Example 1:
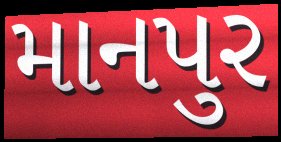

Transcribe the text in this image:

માનપુર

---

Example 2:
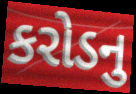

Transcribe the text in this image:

કરોડનુ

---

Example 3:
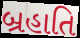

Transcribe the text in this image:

બ્રહાતિ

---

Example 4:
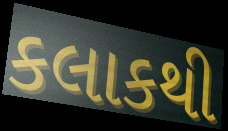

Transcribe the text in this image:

કલાકથી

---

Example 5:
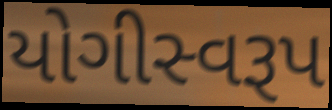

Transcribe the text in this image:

યોગીસ્વરૂપ